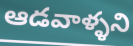
ఆడవాళ్ళని